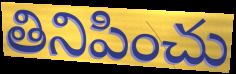
తినిపించు